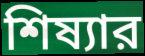
শিষ্যার